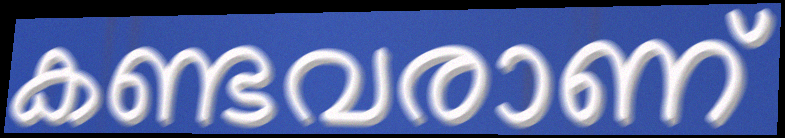
കണ്ടവരാണ്